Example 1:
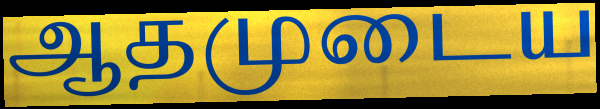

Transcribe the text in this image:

ஆதமுடைய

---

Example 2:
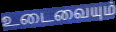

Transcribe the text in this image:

உடைவையும்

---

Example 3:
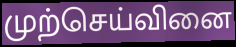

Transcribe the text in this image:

முற்செய்வினை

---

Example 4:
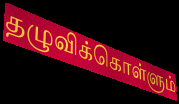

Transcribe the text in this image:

தழுவிக்கொள்ளும்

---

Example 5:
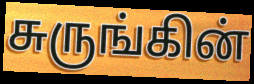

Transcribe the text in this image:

சுருங்கின்